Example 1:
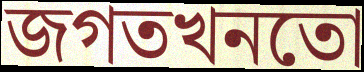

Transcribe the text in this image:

জগতখনতো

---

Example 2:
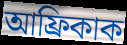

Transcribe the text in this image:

আফ্ৰিকাক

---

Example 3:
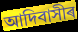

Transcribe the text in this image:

আদিবাসীৰ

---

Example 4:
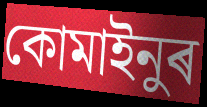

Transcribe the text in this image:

কোমাইনুৰ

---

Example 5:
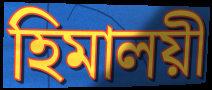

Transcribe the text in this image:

হিমালয়ী